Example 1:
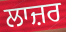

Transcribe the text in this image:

ਲਾਜ਼ਰ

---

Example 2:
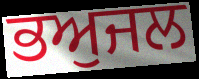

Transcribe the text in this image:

ਭਅੁਜਲ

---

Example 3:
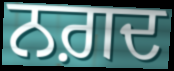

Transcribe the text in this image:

ਨਗ਼ਦ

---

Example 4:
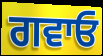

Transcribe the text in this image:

ਗਵਾਓ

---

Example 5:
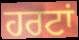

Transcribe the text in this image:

ਹਰਟਾਂ